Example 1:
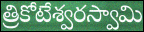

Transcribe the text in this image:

త్రికోటేశ్వరస్వామి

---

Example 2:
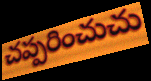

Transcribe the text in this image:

చప్పరించుచు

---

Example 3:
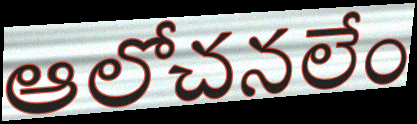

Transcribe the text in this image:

ఆలోచనలేం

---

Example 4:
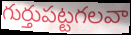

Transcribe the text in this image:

గుర్తుపట్టగలవా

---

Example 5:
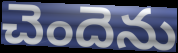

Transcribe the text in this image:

చెందెను